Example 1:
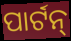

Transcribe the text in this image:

ପାର୍ଟନ୍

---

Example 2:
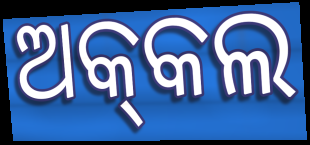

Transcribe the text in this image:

ଅକ୍‌କଲ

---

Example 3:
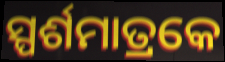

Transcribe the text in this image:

ସ୍ପର୍ଶମାତ୍ରକେ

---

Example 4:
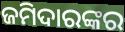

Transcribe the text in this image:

ଜମିଦାରଙ୍କର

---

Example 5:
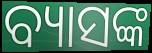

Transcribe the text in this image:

ବ୍ୟାସଙ୍କ